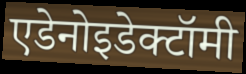
एडेनोइडेक्टॉमी